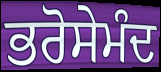
ਭਰੋਸੇਮੰਦ